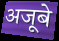
अजूबे